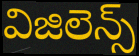
విజిలెన్స్